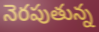
నెరపుతున్న